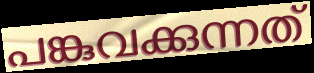
പങ്കുവക്കുന്നത്